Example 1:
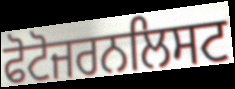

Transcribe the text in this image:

ਫੋਟੋਜਰਨਲਿਸਟ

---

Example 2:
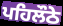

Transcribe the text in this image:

ਪਹਿਲੌਠੇ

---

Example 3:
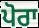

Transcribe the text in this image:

ਪੋਰਾ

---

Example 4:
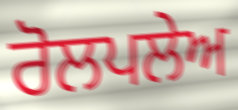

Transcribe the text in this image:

ਰੋਲਪਲੇਅ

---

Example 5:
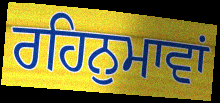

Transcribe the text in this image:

ਰਹਿਨੁਮਾਵਾਂ